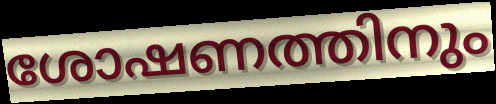
ശോഷണത്തിനും